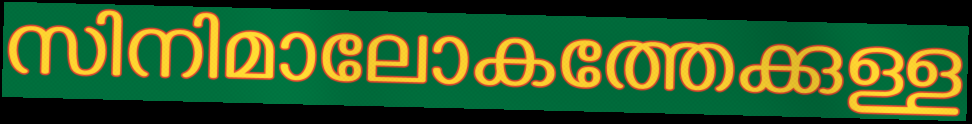
സിനിമാലോകത്തേക്കുള്ള